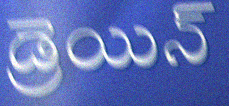
డ్రెయిన్